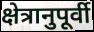
क्षेत्रानुपूर्वी